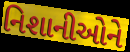
નિશાનીઓને